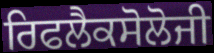
ਰਿਫਲੈਕਸੋਲੋਜੀ